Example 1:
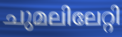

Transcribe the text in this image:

ചുമലിലേറ്റി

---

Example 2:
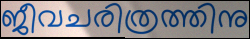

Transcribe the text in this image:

ജീവചരിത്രത്തിനു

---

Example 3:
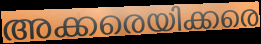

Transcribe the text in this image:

അക്കരെയിക്കരെ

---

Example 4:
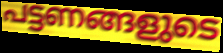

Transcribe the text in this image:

പട്ടണങ്ങളുടെ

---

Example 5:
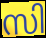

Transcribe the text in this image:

സി